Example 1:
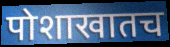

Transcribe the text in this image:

पोशाखातच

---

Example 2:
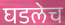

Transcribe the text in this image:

घडलेच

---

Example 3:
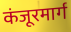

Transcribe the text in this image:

कंजूरमार्ग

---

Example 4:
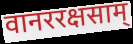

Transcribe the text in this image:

वानररक्षसाम्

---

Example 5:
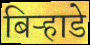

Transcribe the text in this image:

बिऱ्हाडे